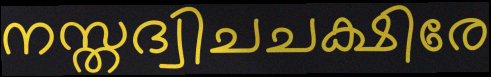
നസ്തദ്വിചചക്ഷിരേ